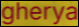
gherya